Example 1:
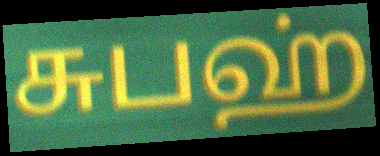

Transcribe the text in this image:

சுபஹ்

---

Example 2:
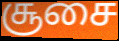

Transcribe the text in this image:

சூசை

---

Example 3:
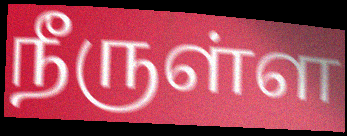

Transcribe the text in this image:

நீருள்ள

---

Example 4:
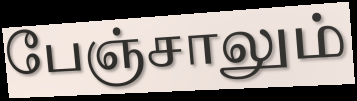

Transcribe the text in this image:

பேஞ்சாலும்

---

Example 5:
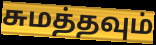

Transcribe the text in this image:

சுமத்தவும்